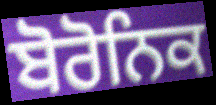
ਬੋਰੋਨਿਕ